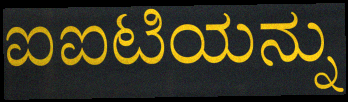
ಐಐಟಿಯನ್ನು